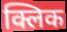
क्लिक